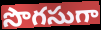
సొగసుగా